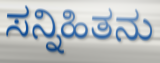
ಸನ್ನಿಹಿತನು